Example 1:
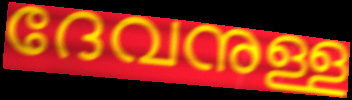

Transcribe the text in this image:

ദേവനുള്ള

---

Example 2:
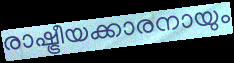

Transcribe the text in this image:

രാഷ്ട്രീയക്കാരനായും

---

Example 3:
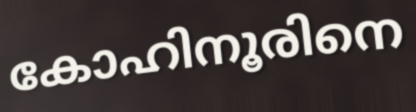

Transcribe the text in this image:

കോഹിനൂരിനെ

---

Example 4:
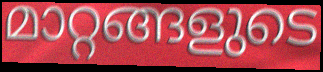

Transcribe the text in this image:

മാറ്റങ്ങളുടെ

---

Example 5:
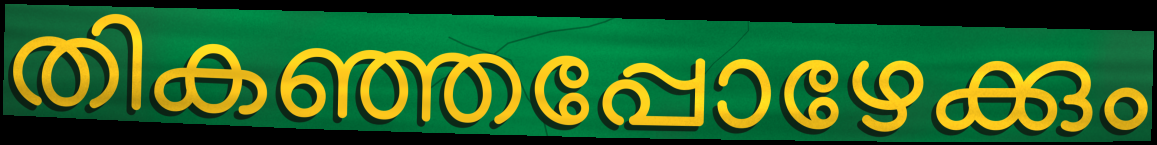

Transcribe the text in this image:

തികഞ്ഞപ്പോഴേക്കും